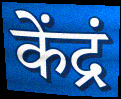
केंद्रं